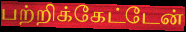
பற்றிக்கேட்டேன்